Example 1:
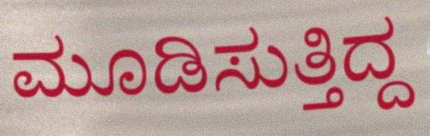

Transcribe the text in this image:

ಮೂಡಿಸುತ್ತಿದ್ದ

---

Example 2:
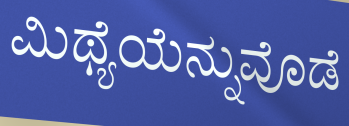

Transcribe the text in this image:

ಮಿಥ್ಯೆಯೆನ್ನುವೊಡೆ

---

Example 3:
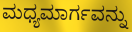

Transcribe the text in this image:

ಮಧ್ಯಮಾರ್ಗವನ್ನು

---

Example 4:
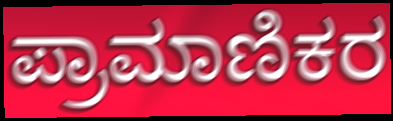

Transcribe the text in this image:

ಪ್ರಾಮಾಣಿಕರ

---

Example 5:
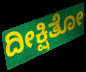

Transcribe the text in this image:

ದೀಕ್ಷಿತೋ